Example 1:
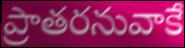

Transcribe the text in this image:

ప్రాతరనువాకే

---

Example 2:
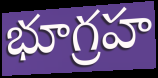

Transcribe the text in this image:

భూగ్రహ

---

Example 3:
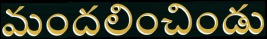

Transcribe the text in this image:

మందలించిండు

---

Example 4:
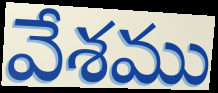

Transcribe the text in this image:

వేశము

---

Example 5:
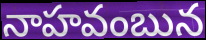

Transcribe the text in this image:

నాహవంబున